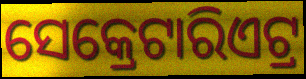
ସେକ୍ରେଟାରିଏଟ୍ର